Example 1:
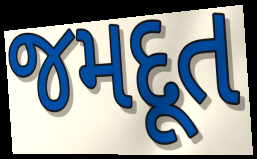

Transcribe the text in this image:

જમદૂત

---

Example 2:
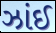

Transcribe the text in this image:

ઝાંઈ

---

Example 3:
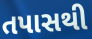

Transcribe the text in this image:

તપાસથી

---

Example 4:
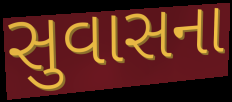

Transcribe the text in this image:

સુવાસના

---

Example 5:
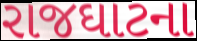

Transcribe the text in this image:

રાજઘાટના